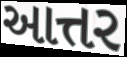
આત્તર